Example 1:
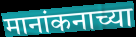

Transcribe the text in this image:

मानांकनाच्या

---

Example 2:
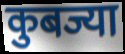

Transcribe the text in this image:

कुबज्या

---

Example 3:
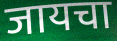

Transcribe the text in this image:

जायचा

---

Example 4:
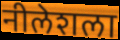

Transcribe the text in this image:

नीलेशला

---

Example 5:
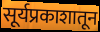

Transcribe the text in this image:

सूर्यप्रकाशातून